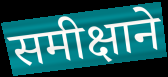
समीक्षाने